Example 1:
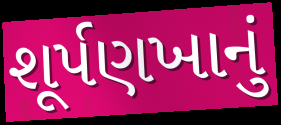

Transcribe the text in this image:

શૂર્પણખાનું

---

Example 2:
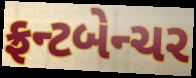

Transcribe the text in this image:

ફ્રન્ટબેન્ચર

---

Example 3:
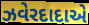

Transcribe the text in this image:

ઝવેરદાદાએ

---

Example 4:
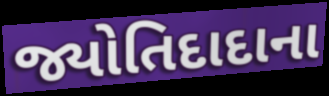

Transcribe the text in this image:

જ્યોતિદાદાના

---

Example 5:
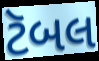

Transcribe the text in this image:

ટૅબલ